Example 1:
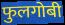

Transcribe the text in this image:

फुलगोबी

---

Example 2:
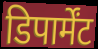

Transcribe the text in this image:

डिपार्मेंट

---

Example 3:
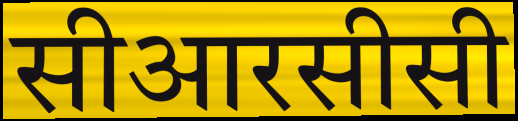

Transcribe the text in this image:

सीआरसीसी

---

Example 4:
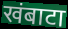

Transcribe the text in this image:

खंबाटा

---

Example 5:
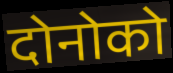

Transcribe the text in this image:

दोनोको